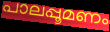
പാലപ്പൂമണം